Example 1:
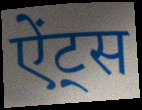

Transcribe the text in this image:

ऐंट्स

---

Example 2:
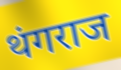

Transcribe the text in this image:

थंगराज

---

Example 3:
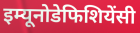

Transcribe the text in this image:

इम्यूनोडेफिशियेंसी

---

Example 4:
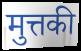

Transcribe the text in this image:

मुत्तकी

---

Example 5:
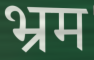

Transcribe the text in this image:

भ्रम